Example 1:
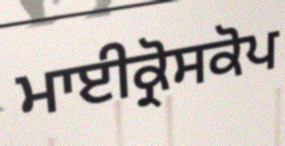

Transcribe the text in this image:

ਮਾਈਕ੍ਰੋਸਕੋਪ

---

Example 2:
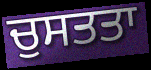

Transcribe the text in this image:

ਚੁਸਤਤਾ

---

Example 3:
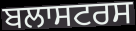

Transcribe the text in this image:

ਬਲਾਸਟਰਸ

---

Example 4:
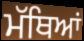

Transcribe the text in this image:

ਮੱਥਿਆਂ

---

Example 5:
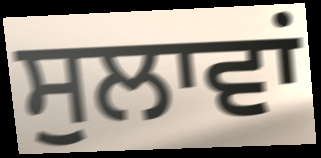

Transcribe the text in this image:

ਸੁਲਾਵਾਂ